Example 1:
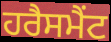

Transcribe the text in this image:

ਹਰੈਸਮੈਂਟ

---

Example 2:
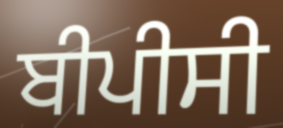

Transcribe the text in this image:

ਬੀਪੀਸੀ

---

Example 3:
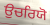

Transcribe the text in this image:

ਉਚਰਿਯੋ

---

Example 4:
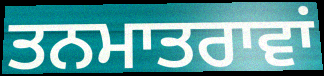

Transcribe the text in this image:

ਤਨਮਾਤਰਾਵਾਂ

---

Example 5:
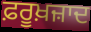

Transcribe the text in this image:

ਫ਼ਰੂਖ਼ਜ਼ਾਦ